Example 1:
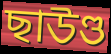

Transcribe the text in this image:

ছাউণ্ড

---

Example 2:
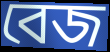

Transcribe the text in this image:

বেজ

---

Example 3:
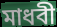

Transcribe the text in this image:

মাধবী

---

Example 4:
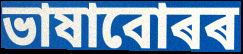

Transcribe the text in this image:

ভাষাবোৰৰ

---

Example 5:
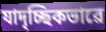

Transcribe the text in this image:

যাদৃচ্ছিকভাৱে